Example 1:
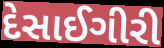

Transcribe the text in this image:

દેસાઈગીરી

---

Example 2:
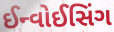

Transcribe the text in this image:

ઈન્વોઈસિંગ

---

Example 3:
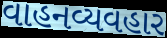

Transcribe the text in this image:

વાહનવ્યવહાર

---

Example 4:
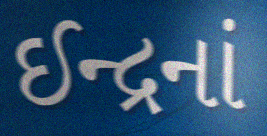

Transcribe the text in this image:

ઈન્દ્રનાં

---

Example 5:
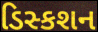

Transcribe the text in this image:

ડિસ્કશન